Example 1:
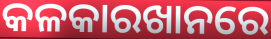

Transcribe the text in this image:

କଳକାରଖାନରେ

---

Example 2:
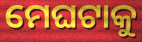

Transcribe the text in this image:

ମେଘଟାକୁ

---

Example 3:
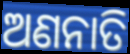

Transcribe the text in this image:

ଅଣନାତି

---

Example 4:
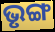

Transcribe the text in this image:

ଭୃଙ୍ଗ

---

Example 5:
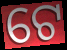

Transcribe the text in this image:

ଟେ